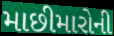
માછીમારોની